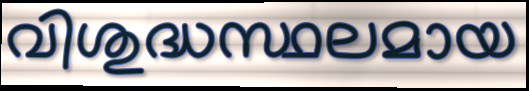
വിശുദ്ധസ്ഥലമായ